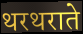
थरथराते